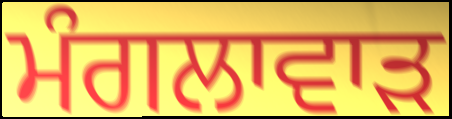
ਮੰਗਲਾਵਾੜ